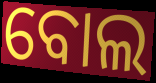
ବୋଲ